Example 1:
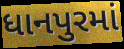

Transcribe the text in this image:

ધાનપુરમાં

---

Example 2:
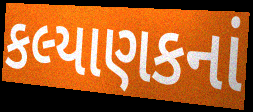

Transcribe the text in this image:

કલ્યાણકનાં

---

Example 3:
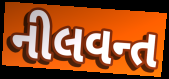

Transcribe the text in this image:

નીલવન્ત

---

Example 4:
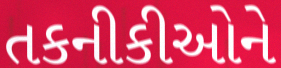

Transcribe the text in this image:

તકનીકીઓને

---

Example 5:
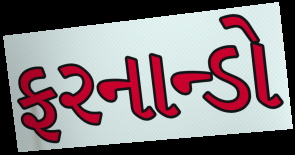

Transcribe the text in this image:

ફરનાન્ડો